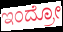
ಇಂದ್ರೋ